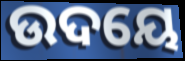
ଉଦୟେ